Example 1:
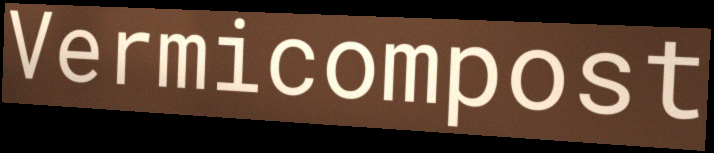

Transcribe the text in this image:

Vermicompost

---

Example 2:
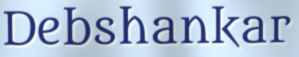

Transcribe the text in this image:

Debshankar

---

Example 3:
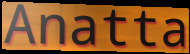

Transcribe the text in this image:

Anatta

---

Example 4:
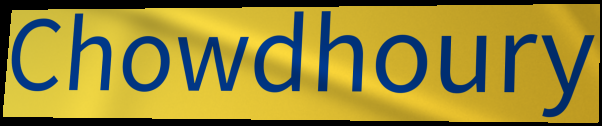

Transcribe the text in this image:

Chowdhoury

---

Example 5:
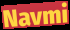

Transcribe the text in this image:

Navmi